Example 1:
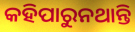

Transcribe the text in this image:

କହିପାରୁନଥାନ୍ତି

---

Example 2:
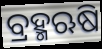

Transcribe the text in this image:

ବ୍ରହ୍ମଋଷି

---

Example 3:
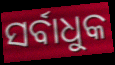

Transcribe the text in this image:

ସର୍ବାଧୁକ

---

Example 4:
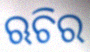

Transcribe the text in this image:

ଋଚିର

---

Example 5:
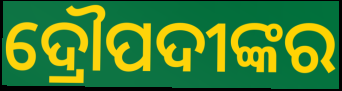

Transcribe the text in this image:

ଦ୍ରୌପଦୀଙ୍କର